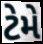
ટેમે